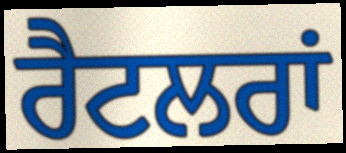
ਰੈਟਲਰਾਂ